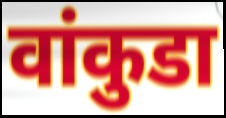
वांकुडा